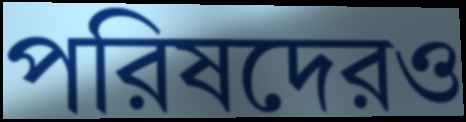
পরিষদেরও